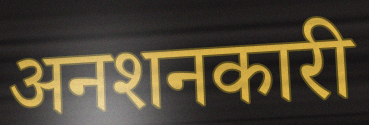
अनशनकारी